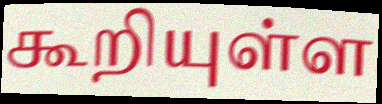
கூறியுள்ள